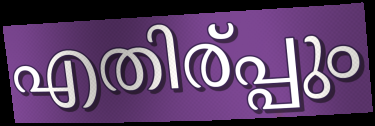
എതിര്പ്പും